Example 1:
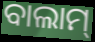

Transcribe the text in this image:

ବାଲାମ୍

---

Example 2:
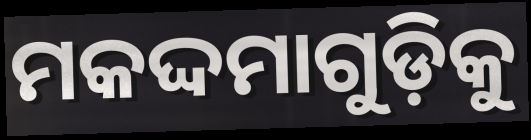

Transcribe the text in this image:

ମକଦ୍ଦମାଗୁଡ଼ିକୁ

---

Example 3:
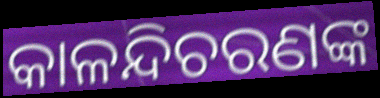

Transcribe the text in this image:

କାଳନ୍ଦିଚରଣଙ୍କ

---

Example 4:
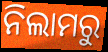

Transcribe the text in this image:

ନିଲାମରୁ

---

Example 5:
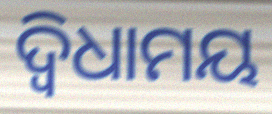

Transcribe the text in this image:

ଦ୍ୱିଧାମୟ